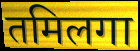
तमिलगा